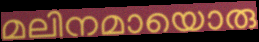
മലിനമായൊരു